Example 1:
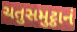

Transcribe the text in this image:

ચતુસમુટ્ઠાનં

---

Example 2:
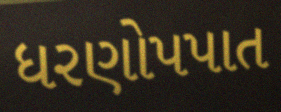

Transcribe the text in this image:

ધરણોપપાત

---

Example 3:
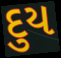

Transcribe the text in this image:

દુય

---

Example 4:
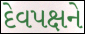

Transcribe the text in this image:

દેવપક્ષને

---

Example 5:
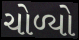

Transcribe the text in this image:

ચોળ્યો